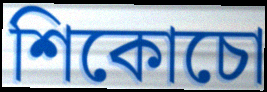
শিকোচো